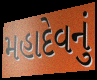
મહાદેવનું